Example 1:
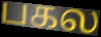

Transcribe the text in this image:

பகல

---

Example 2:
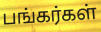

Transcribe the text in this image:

பங்கர்கள்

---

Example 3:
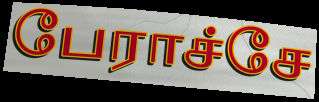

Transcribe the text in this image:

பேராச்சே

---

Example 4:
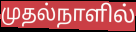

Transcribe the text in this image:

முதல்நாளில்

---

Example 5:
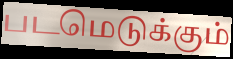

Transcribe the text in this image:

படமெடுக்கும்